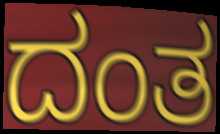
ದಂತ